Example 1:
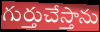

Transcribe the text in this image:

గుర్తుచేస్తాను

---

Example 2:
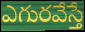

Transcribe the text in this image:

ఎగురవేస్తే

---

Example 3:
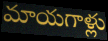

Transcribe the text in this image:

మాయగాళ్లు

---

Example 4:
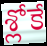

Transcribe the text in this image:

శ్లోకే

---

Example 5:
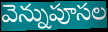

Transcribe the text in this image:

వెన్నుపూసల